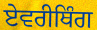
ਏਵਰੀਥਿੰਗ